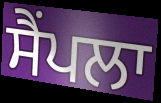
ਸੈਂਪਲਾ